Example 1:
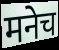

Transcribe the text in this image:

मनेच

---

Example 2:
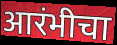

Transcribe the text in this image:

आरंभीचा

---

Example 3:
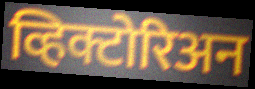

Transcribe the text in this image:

व्हिक्टोरिअन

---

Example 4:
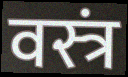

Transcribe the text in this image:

वस्त्रं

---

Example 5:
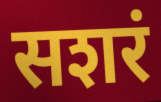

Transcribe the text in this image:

सशरं